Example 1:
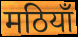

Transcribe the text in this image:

मठियाँ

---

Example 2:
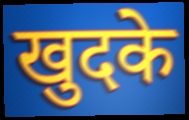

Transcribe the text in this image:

खुदके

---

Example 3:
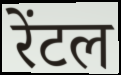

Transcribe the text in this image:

रेंटल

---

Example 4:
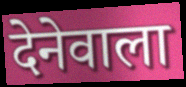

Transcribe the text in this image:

देनेवाला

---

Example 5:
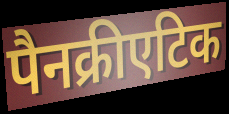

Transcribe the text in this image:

पैनक्रीएटिक